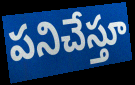
పనిచేస్తూ